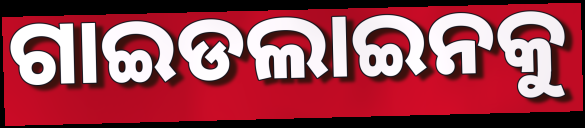
ଗାଇଡଲାଇନକୁ